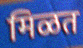
मिळत